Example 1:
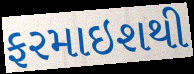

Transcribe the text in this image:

ફરમાઇશથી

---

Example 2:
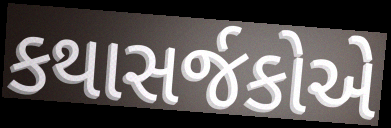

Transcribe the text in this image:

કથાસર્જકોએ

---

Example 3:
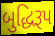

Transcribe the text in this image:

બુદ્ધિરૂપ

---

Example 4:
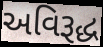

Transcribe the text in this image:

અવિરૂદ્ધ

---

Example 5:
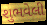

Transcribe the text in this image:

શુભવેલી